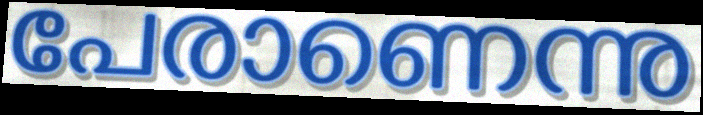
പേരാണെന്നു